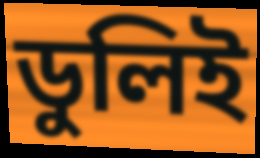
ডুলিই